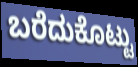
ಬರೆದುಕೊಟ್ಟು